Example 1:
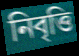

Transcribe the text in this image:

নিবৃত্তি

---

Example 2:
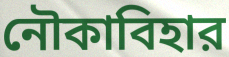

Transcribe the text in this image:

নৌকাবিহার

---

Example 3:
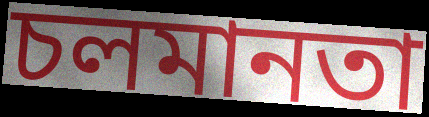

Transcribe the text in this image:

চলমানতা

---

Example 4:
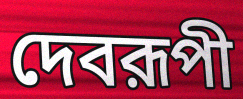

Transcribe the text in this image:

দেবরূপী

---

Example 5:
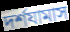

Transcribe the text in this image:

দর্শযামাস